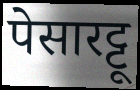
पेसारट्टू